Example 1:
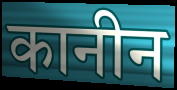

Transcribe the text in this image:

कानीन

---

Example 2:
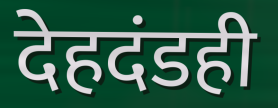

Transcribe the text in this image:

देहदंडही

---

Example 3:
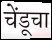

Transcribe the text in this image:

चेंडूचा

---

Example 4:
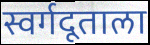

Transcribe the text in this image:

स्वर्गदूताला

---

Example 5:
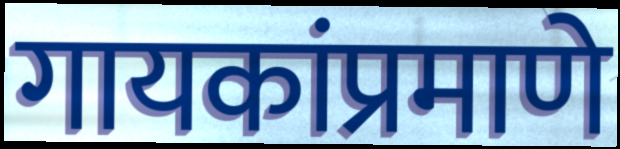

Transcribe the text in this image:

गायकांप्रमाणे